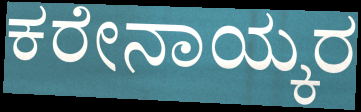
ಕರೇನಾಯ್ಕರ